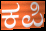
ಕಪಿ